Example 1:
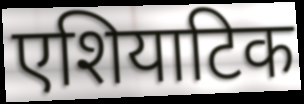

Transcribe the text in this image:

एशियाटिक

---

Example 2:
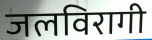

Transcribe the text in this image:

जलविरागी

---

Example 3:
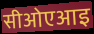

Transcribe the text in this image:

सीओएआइ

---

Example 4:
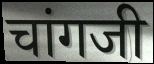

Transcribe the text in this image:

चांगजी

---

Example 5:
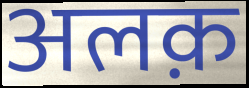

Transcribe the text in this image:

अलक़